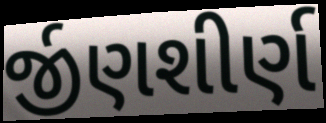
ર્જીણશીર્ણ